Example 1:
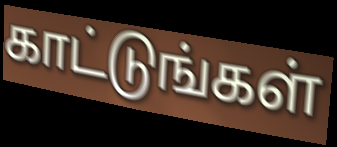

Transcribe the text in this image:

காட்டுங்கள்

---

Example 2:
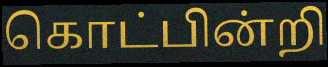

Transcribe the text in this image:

கொட்பின்றி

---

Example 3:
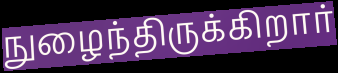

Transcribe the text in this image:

நுழைந்திருக்கிறார்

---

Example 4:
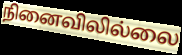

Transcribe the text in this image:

நினைவிலில்லை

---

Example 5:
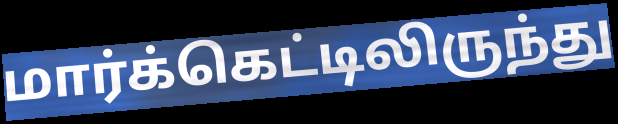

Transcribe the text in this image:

மார்க்கெட்டிலிருந்து